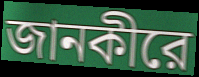
জানকীরে